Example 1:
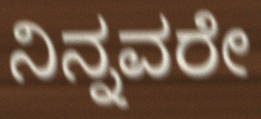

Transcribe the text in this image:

ನಿನ್ನವರೇ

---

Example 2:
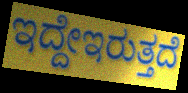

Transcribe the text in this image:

ಇದ್ದೇಇರುತ್ತದೆ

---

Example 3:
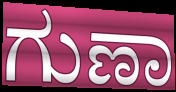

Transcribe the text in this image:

ಗುಣಾ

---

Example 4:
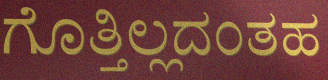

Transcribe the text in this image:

ಗೊತ್ತಿಲ್ಲದಂತಹ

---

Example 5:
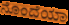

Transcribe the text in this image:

ನೊಂದೆಯಾ